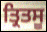
ਤ੍ਰਿਤਸੂ